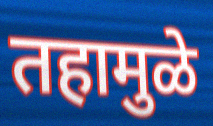
तहामुळे